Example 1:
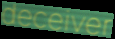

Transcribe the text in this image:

deceiver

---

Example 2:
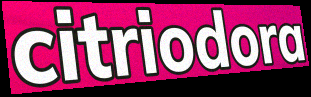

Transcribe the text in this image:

citriodora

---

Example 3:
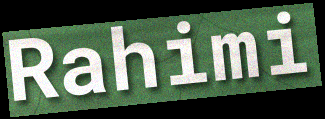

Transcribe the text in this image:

Rahimi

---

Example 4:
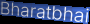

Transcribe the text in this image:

Bharatbhai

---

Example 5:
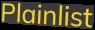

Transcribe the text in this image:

Plainlist